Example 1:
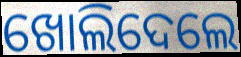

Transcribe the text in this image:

ଖୋଲିଦେଲେ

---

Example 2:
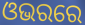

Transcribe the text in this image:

ଓଭରରେ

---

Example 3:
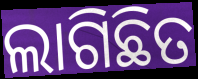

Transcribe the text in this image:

ଲାଗିଛିତ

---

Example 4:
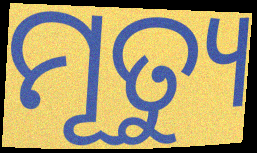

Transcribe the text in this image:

ମୂତ୍ୟୁ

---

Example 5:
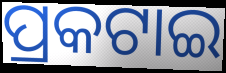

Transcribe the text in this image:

ପ୍ରକଟାଇ